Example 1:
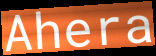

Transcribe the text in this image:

Ahera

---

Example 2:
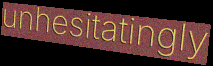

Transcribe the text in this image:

unhesitatingly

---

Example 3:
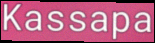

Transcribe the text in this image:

Kassapa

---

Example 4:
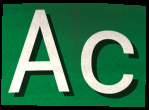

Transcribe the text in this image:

Ac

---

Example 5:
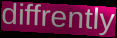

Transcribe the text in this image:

diffrently